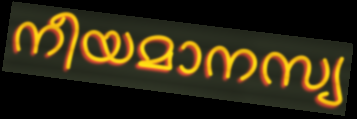
നീയമാനസ്യ